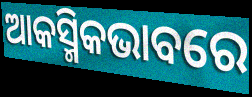
ଆକସ୍ମିକଭାବରେ